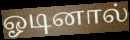
ஓடினால்